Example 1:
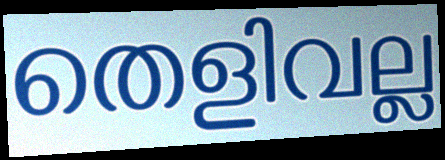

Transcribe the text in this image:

തെളിവല്ല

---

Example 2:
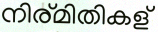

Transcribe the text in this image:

നിര്മിതികള്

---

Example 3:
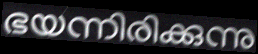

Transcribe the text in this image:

ഭയന്നിരിക്കുന്നു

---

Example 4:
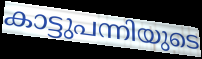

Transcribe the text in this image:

കാട്ടുപന്നിയുടെ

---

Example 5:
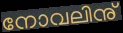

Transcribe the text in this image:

നോവലിനു്